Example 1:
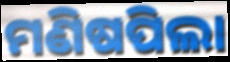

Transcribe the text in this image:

ମଣିଷପିଲା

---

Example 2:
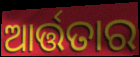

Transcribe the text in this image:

ଆର୍ତ୍ତତାର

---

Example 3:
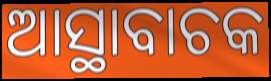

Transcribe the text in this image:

ଆସ୍ଥାବାଚକ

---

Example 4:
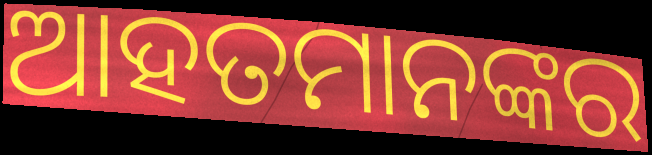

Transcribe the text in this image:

ଆହତମାନଙ୍କର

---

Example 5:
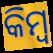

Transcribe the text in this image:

କିମ୍ବ